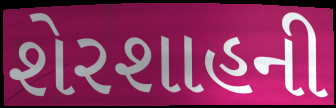
શેરશાહની